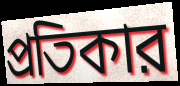
প্রতিকার